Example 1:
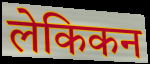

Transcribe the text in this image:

लेकिकन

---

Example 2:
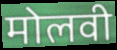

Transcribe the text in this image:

मोलवी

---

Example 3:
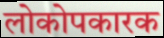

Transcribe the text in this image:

लोकोपकारक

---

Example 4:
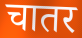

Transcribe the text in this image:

चातर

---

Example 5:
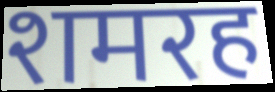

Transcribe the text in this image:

शमरह